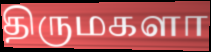
திருமகளா